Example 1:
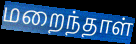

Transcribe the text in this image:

மறைந்தாள்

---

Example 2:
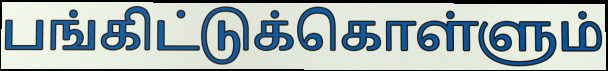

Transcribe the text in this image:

பங்கிட்டுக்கொள்ளும்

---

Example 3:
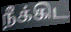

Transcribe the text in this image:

நீக்கிட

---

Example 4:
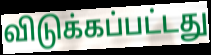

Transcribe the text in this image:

விடுக்கப்பட்டது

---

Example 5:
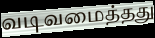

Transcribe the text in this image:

வடிவமைத்தது